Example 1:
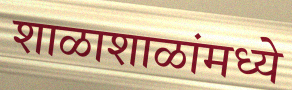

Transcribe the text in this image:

शाळाशाळांमध्ये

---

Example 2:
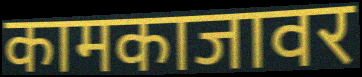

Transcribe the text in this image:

कामकाजावर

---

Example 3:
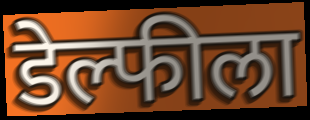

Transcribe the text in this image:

डेल्फीला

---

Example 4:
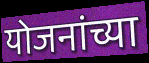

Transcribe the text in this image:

योजनांच्या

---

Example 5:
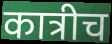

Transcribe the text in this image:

कात्रीच